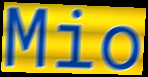
Mio